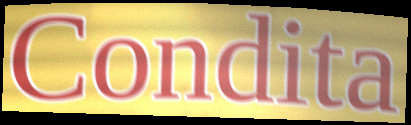
Condita